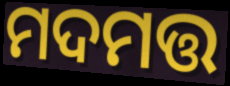
ମଦମତ୍ତ